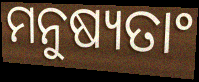
ମନୁଷ୍ୟତାଂ